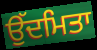
ਉੱਦਮਿਤਾ